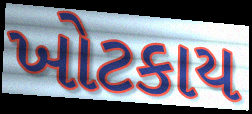
ખોટકાય